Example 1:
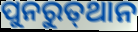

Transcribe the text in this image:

ପୁନରୁତ୍‍ଥାନ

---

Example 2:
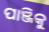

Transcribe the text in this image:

ପାଞ୍ଜିକୁ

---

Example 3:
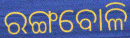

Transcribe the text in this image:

ରଙ୍ଗବୋଳି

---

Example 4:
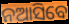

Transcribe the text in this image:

ନଆସିବେ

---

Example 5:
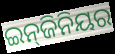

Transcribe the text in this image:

ଇନ୍‌ଜିନିୟର